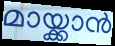
മായ്ക്കാൻ